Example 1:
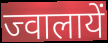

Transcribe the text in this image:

ज्वालायें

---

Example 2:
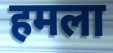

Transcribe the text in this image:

हमला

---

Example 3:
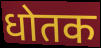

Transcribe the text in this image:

धोतक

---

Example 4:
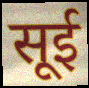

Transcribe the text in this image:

सूई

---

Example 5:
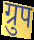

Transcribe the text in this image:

ग्रुप